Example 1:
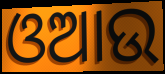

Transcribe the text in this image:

ଓଆଉ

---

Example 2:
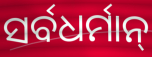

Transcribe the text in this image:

ସର୍ବଧର୍ମାନ୍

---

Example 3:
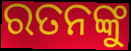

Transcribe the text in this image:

ରତନଙ୍କୁ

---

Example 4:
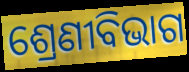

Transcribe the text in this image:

ଶ୍ରେଣୀବିଭାଗ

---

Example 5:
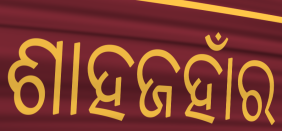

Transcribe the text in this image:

ଶାହଜହାଁର